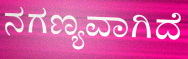
ನಗಣ್ಯವಾಗಿದೆ